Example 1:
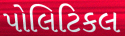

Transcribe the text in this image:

પોલિટિકલ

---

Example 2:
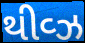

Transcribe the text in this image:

થીવ્ઝ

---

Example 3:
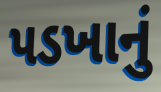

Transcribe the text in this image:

પડખાનું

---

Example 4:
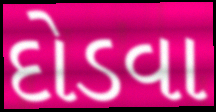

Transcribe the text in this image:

દોડવા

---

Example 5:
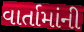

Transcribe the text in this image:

વાર્તામાંની